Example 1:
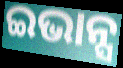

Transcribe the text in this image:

ଇଭାନ୍ସ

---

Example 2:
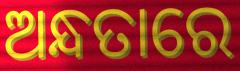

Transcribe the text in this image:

ଅନ୍ଧତାରେ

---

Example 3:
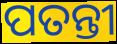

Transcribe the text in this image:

ପତନ୍ତୀ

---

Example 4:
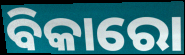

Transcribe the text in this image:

ବିକାରୋ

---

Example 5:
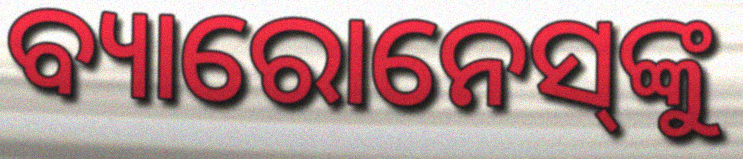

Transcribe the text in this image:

ବ୍ୟାରୋନେସ୍‌ଙ୍କୁ